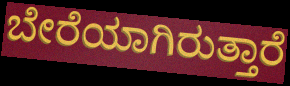
ಬೇರೆಯಾಗಿರುತ್ತಾರೆ